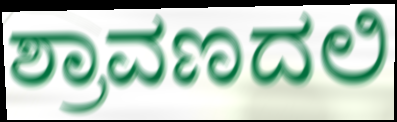
ಶ್ರಾವಣದಲಿ